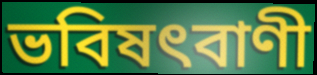
ভবিষৎবাণী